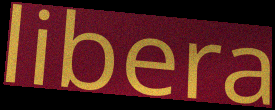
libera